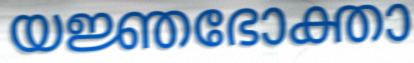
യജ്ഞഭോക്താ